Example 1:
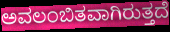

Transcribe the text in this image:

ಅವಲಂಬಿತವಾಗಿರುತ್ತದೆ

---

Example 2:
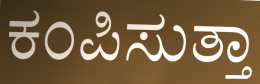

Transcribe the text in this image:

ಕಂಪಿಸುತ್ತಾ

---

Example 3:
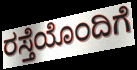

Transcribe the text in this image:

ರಸ್ತೆಯೊಂದಿಗೆ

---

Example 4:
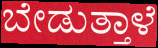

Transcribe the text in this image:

ಬೇಡುತ್ತಾಳೆ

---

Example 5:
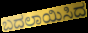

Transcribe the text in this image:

ಬದಲಾಯಿಸಿದ